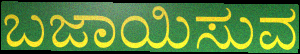
ಬಜಾಯಿಸುವ